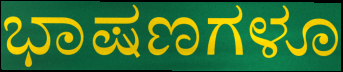
ಭಾಷಣಗಳೂ